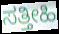
ಸತ್ತೀಹಿ